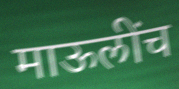
माऊलींच